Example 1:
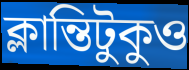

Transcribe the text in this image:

ক্লান্তিটুকুও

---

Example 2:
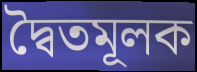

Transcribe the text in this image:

দ্বৈতমূলক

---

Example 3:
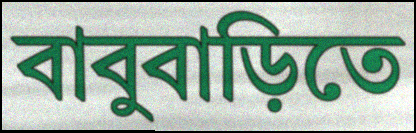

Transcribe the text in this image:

বাবুবাড়িতে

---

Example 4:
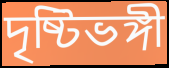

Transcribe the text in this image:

দৃষ্টিভঙ্গী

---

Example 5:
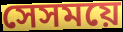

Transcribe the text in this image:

সেসময়ে